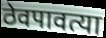
ठेवपावत्या